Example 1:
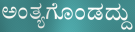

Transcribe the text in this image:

ಅಂತ್ಯಗೊಂಡದ್ದು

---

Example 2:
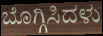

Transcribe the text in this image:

ಬೊಗ್ಗಿಸಿದಳು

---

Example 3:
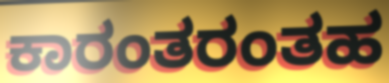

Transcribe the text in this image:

ಕಾರಂತರಂತಹ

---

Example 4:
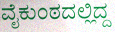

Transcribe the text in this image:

ವೈಕುಂಠದಲ್ಲಿದ್ದ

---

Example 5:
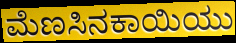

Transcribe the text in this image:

ಮೆಣಸಿನಕಾಯಿಯು